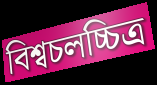
বিশ্বচলচ্চিত্র